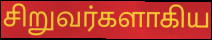
சிறுவர்களாகிய